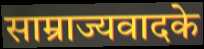
साम्राज्यवादके